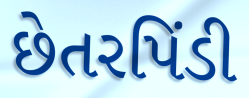
છેતરપિંડી